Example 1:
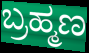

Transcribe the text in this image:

ಬ್ರಹ್ಮಣ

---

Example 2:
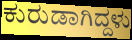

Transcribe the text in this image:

ಕುರುಡಾಗಿದ್ದಳು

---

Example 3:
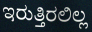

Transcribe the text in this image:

ಇರುತ್ತಿರಲಿಲ್ಲ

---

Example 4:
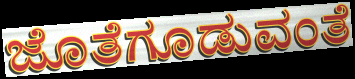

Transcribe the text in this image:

ಜೊತೆಗೂಡುವಂತೆ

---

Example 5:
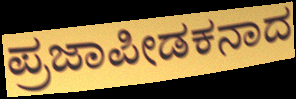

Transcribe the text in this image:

ಪ್ರಜಾಪೀಡಕನಾದ